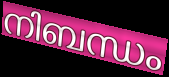
നിബന്ധം